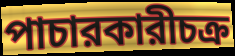
পাচারকারীচক্র